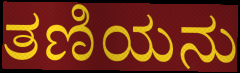
ತಣಿಯನು